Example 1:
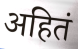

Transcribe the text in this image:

अहितं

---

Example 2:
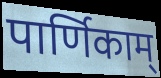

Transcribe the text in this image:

पार्णिकाम्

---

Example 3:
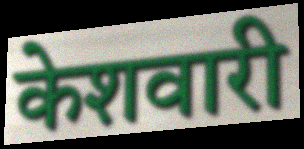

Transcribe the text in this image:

केशवारी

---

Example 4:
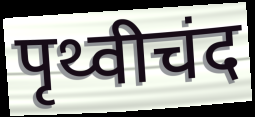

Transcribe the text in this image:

पृथ्वीचंद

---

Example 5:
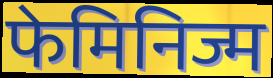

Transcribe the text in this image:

फेमिनिज्‍म